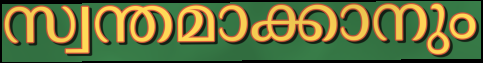
സ്വന്തമാക്കാനും